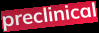
preclinical